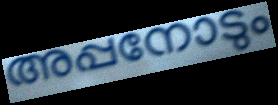
അപ്പനോടും